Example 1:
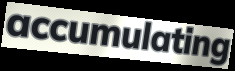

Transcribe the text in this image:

accumulating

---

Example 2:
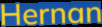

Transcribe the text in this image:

Hernan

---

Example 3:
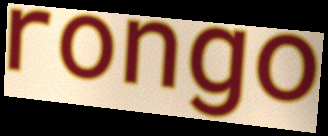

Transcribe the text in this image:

rongo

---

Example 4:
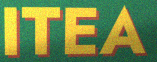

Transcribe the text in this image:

ITEA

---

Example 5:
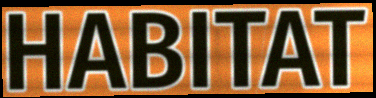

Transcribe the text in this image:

HABITAT